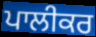
ਪਾਲੀਕਰ